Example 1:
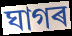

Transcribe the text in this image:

ঘাগৰ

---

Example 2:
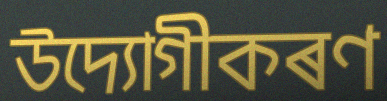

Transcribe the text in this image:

উদ্যোগীকৰণ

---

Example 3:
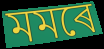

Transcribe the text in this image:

মমৰে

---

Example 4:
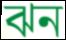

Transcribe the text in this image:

ঝন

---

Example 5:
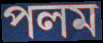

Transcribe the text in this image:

পলম